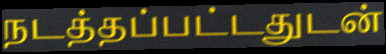
நடத்தப்பட்டதுடன்